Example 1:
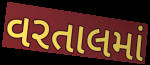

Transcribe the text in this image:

વરતાલમાં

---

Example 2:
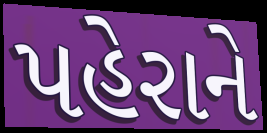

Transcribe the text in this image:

પહેરાને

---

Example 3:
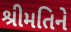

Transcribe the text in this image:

શ્રીમતિને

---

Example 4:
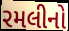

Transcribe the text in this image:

રમલીનો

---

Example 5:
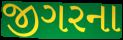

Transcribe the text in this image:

જીગરના